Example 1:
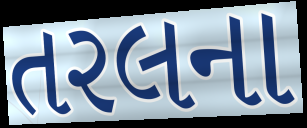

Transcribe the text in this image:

તરલના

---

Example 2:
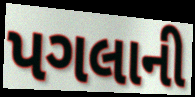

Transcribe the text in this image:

પગલાની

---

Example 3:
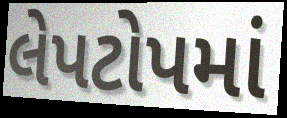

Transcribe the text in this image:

લેપટોપમાં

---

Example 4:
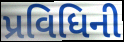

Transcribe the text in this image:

પ્રવિધિની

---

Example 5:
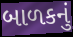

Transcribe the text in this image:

બાળકનું